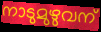
നാടുമുഴുവന്